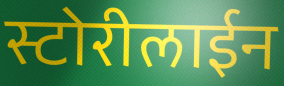
स्टोरीलाईन